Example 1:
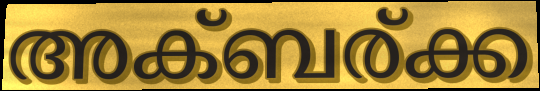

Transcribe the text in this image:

അക്ബര്ക്ക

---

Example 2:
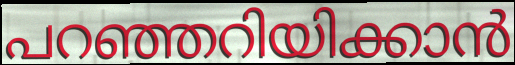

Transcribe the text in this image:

പറഞ്ഞറിയിക്കാൻ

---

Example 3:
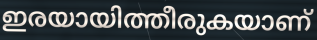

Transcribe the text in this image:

ഇരയായിത്തീരുകയാണ്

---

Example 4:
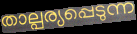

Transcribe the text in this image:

താല്പര്യപ്പെടുന്ന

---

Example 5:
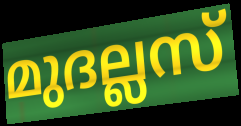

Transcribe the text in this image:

മുദല്ലസ്